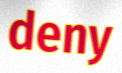
deny